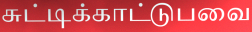
சுட்டிக்காட்டுபவை